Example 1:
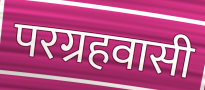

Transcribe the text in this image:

परग्रहवासी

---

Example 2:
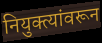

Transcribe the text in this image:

नियुक्त्यांवरून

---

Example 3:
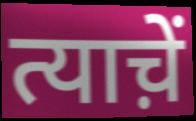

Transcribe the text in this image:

त्याच़ें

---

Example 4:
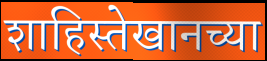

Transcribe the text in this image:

शाहिस्तेखानच्या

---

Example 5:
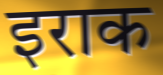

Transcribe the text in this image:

इराक